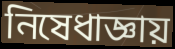
নিষেধাজ্ঞায়